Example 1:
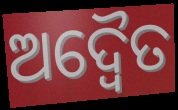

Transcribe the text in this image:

ଅଦ୍ୱୈତ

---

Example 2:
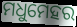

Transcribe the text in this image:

ମଧୁମେହର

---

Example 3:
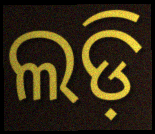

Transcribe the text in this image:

ଲଡ଼ି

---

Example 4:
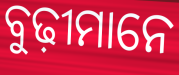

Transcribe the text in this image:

ବୁଢ଼ୀମାନେ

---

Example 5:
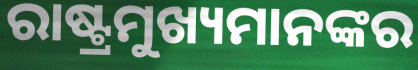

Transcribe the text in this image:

ରାଷ୍ଟ୍ରମୁଖ୍ୟମାନଙ୍କର